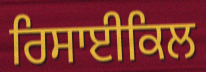
ਰਿਸਾਈਕਿਲ